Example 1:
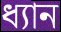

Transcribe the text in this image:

ধ্যান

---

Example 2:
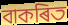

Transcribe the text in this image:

বাকৰিত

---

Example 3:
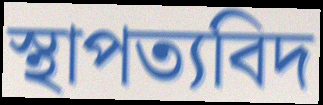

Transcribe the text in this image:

স্থাপত্যবিদ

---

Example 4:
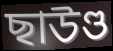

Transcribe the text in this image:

ছাউণ্ড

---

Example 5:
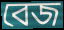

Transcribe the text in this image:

বেজ